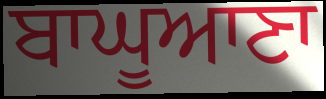
ਬਾਘੂਆਣਾ